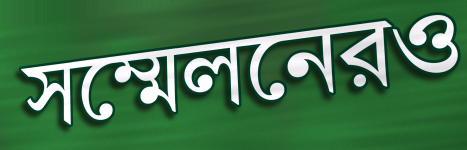
সম্মেলনেরও